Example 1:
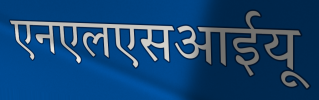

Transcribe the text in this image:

एनएलएसआईयू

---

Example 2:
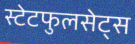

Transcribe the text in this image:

स्टेटफुलसेट्स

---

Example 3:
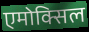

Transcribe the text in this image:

एमोक्सिल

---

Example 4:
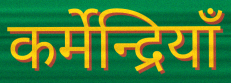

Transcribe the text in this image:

कर्मेन्द्रियाँ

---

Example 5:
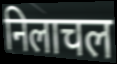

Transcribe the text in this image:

निलाचल